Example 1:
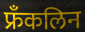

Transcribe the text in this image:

फ्रॅंकलिन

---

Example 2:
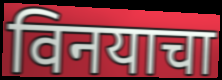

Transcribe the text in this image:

विनयाचा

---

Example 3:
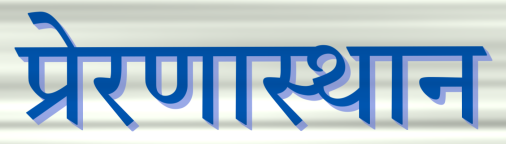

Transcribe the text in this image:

प्रेरणास्थान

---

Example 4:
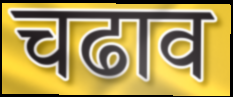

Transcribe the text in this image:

चढाव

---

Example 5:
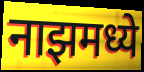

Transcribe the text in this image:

नाझमध्ये